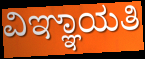
ವಿಞ್ಞಾಯತಿ